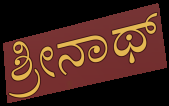
ಶ್ರೀನಾಥ್